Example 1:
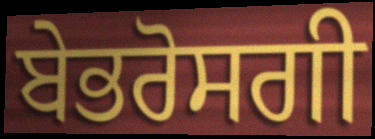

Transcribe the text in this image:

ਬੇਭਰੋਸਗੀ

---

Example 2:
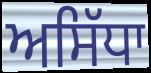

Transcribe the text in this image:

ਅਸਿੱਧਾ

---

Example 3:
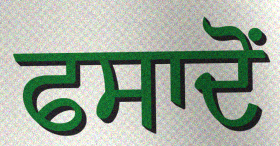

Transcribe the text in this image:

ਫਸਾਦੋਂ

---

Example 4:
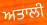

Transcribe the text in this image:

ਅਤਾਲੀ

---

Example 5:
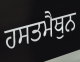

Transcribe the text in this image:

ਹਸਤਮੈਥੁਨ